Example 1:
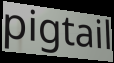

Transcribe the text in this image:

pigtail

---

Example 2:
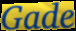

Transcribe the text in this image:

Gade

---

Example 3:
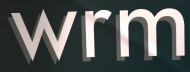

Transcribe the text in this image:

wrm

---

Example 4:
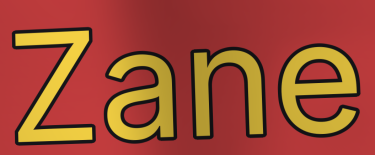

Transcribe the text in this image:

Zane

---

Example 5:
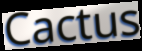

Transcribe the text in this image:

Cactus